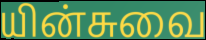
யின்சுவை